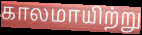
காலமாயிற்று